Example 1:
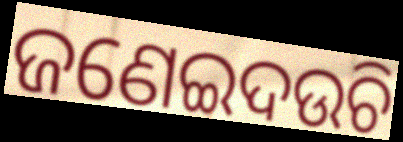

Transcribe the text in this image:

ଜଣେଇଦଉଚି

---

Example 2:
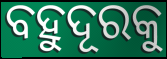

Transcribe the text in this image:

ବହୁଦୂରକୁ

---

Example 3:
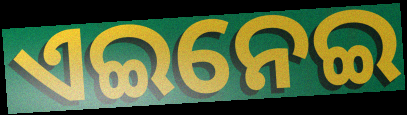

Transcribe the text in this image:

ଏଇନେଇ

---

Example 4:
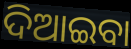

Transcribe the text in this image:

ଦିଆଇବା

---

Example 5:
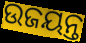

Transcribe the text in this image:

ଉଜୟନ୍ତ